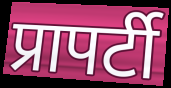
प्रापर्टी